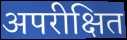
अपरीक्षित